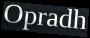
Opradh